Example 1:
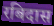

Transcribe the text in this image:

रबिदास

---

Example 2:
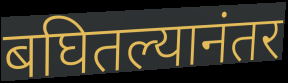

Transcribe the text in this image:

बघितल्यानंतर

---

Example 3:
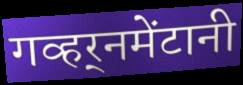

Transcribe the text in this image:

गव्हर्नमेंटानी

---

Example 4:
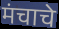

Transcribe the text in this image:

मंचाचे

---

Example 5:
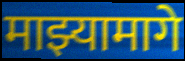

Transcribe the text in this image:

माझ्यामागे